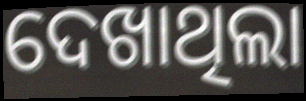
ଦେଖାଥିଲା